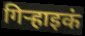
गिऱ्हाइकं